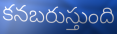
కనబరుస్తుంది